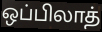
ஒப்பிலாத்